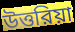
উত্তরিয়া